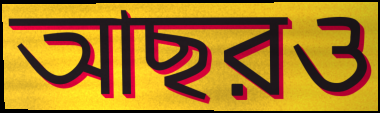
আছরও